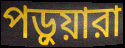
পড়ুয়ারা